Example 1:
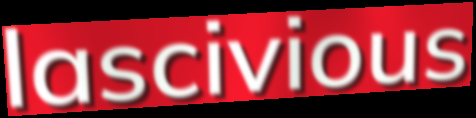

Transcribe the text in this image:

lascivious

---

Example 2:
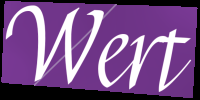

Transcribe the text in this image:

Wert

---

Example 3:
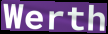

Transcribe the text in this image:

Werth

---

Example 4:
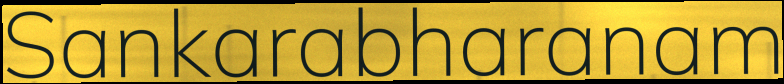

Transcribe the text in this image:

Sankarabharanam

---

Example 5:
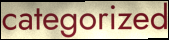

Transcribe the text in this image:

categorized